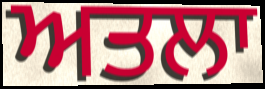
ਅਤਲਾ